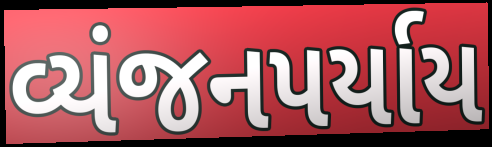
વ્યંજનપર્યાય